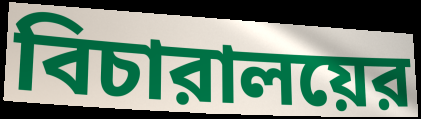
বিচারালয়ের